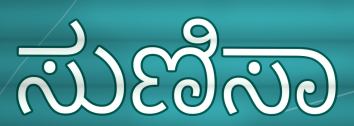
ಸುಣಿಸಾ